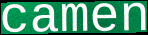
camen